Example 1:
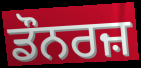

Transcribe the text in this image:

ਡੌਨਰਜ਼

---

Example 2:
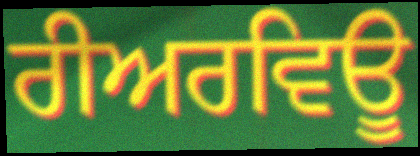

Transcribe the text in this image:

ਰੀਅਰਵਿਊ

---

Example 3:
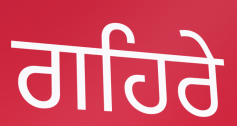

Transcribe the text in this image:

ਗਹਿਰੇ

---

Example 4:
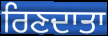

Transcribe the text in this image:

ਰਿਣਦਾਤਾ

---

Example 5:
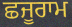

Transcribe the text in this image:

ਛਜੂਰਾਮ